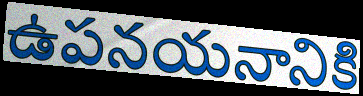
ఉపనయనానికి